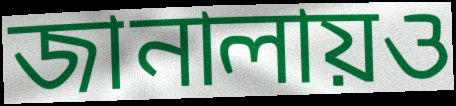
জানালায়ও